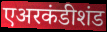
एअरकंडीशंड